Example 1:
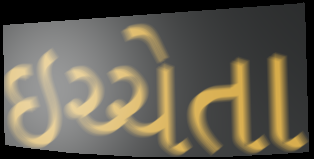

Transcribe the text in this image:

ઇચ્ચેતા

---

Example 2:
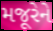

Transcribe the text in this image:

મજૂરેને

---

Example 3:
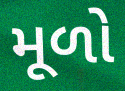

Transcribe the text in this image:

મૂળો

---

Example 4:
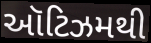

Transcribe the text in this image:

ઑટિઝમથી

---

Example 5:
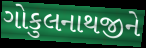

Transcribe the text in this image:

ગોકુલનાથજીને